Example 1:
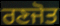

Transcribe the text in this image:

ਰਣਜੋਤ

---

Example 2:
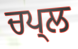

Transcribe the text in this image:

ਚਪ੍ਲ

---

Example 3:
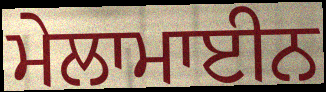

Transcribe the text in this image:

ਮੇਲਾਮਾਈਨ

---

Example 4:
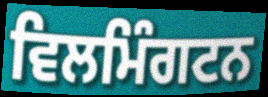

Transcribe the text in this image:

ਵਿਲਮਿੰਗਟਨ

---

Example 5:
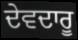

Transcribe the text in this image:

ਦੇਵਦਾਰੂ